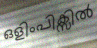
ഒളിംപിക്സിൽ